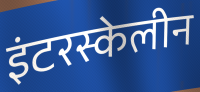
इंटरस्केलीन